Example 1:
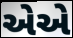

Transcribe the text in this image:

એએ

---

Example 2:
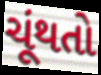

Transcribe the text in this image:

ચૂંથતો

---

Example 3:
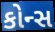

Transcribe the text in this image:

કોન્સ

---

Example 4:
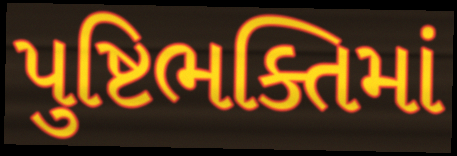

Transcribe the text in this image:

પુષ્ટિભક્તિમાં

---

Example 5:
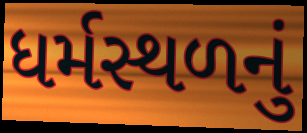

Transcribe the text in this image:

ધર્મસ્થળનું